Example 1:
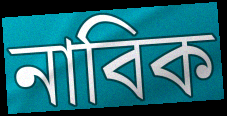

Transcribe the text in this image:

নাবিক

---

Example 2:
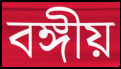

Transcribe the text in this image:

বঙ্গীয়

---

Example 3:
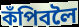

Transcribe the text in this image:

কঁপিবলৈ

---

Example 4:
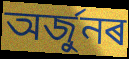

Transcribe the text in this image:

অৰ্জুনৰ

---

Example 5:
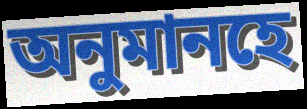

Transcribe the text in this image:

অনুমানহে